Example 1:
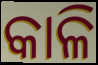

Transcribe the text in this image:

କାଳି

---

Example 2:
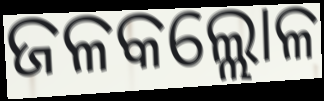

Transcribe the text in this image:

ଜଳକଲ୍ଲୋଳ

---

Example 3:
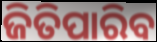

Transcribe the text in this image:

ଜିତିପାରିବ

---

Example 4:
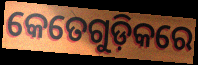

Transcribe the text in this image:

କେତେଗୁଡ଼ିକରେ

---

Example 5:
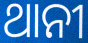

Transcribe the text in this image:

ଥାନୀ